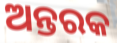
ଅନ୍ତରକ